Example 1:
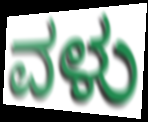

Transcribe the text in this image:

ವಳು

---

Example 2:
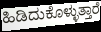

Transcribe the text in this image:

ಹಿಡಿದುಕೊಳ್ಳುತ್ತಾರೆ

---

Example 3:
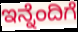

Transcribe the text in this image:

ಇನ್ನೆಂದಿಗೆ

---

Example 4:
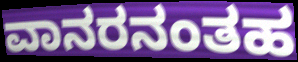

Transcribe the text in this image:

ವಾನರನಂತಹ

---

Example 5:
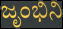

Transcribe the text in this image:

ಜೃಂಭಿನಿ